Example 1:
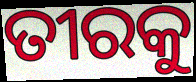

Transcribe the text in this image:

ତୀରକୁ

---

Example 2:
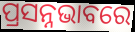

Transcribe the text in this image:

ପ୍ରସନ୍ନଭାବରେ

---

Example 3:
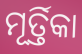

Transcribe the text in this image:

ମୂର୍ତ୍ତିକା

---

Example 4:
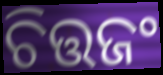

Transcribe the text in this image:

ଚିତ୍ତଜଂ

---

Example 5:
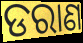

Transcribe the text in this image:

ଡରାଣ